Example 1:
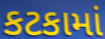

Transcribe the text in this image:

કટકામાં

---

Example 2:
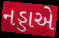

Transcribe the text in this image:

નડ્ડાએ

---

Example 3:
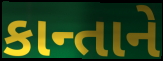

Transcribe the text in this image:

કાન્તાને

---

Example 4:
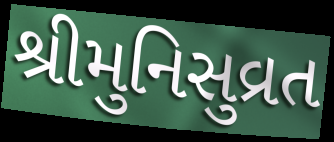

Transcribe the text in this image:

શ્રીમુનિસુવ્રત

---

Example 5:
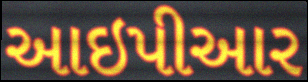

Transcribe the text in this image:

આઇપીઆર